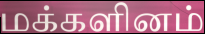
மக்களினம்